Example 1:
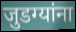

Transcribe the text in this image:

जुडग्यांना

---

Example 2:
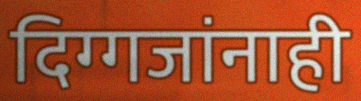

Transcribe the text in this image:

दिग्गजांनाही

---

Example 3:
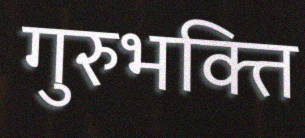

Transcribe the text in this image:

गुरुभक्ति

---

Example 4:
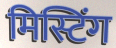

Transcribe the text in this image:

मिस्टिंग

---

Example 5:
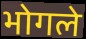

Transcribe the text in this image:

भोगले